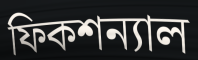
ফিকশন্যাল